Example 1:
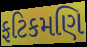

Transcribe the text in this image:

ફટિકમણિ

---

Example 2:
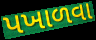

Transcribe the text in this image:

પખાળવા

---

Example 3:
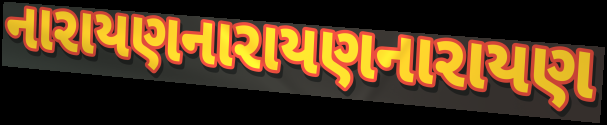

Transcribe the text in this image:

નારાયણનારાયણનારાયણ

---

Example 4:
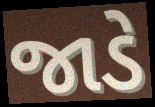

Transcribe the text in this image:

જાડે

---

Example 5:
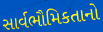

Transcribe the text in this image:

સાર્વભૌમિકતાનો